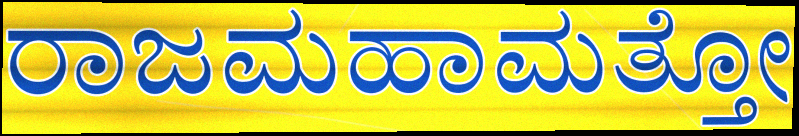
ರಾಜಮಹಾಮತ್ತೋ